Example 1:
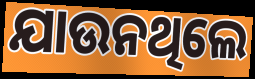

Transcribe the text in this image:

ଯାଉନଥିଲେ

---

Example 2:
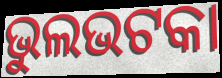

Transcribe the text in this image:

ଭୁଲଭଟକା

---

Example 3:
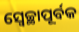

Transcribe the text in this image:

ସ୍ଵେଚ୍ଛାପୂର୍ବକ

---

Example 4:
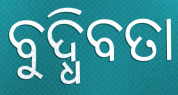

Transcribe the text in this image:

ବୁଦ୍ଧିବତା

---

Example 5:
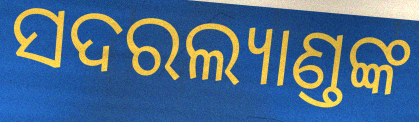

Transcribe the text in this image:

ସଦରଲ୍ୟାଣ୍ଡଙ୍କ